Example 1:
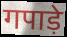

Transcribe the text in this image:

गपाड़े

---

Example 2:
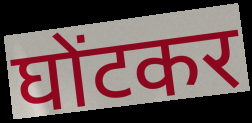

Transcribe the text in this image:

घोंटकर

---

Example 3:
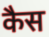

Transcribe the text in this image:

कैस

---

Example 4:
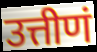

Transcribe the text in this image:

उत्तीणं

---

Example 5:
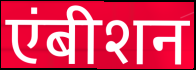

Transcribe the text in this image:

एंबीशन